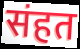
संहत